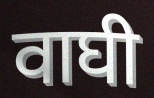
वाघी